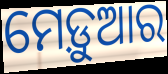
ମେଡ଼ୁଆର